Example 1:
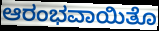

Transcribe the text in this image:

ಆರಂಭವಾಯಿತೊ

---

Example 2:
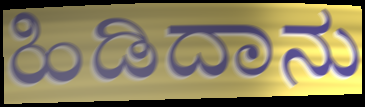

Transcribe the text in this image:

ಹಿಡಿದಾನು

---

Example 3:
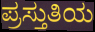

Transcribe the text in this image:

ಪ್ರಸ್ತುತಿಯ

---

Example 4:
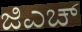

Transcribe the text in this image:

ಜಿಎಚ್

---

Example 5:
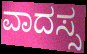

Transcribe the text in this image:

ವಾದಸ್ಸ